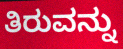
ತಿರುವನ್ನು